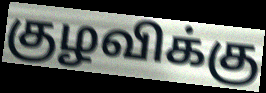
குழவிக்கு